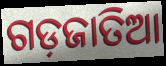
ଗଡ଼ଜାତିଆ